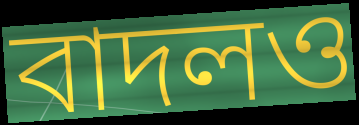
বাদলও